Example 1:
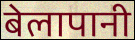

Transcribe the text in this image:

बेलापानी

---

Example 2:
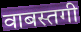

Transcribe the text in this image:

वाबस्तगी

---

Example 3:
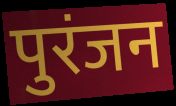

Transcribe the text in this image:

पुरंजन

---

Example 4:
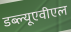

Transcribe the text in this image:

डब्ल्यूएवीएल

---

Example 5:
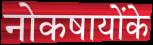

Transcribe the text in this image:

नोकषायोंके